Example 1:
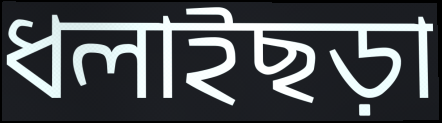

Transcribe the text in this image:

ধলাইছড়া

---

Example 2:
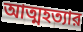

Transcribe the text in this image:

আত্মহত্যার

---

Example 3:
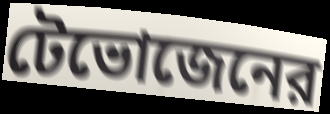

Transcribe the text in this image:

টেভোজেনের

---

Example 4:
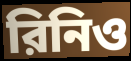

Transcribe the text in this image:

রিনিও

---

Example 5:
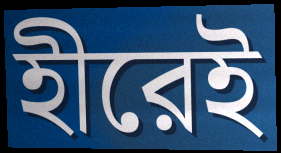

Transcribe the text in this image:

হীরেই